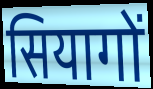
सियागों